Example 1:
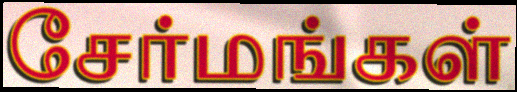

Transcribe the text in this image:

சேர்மங்கள்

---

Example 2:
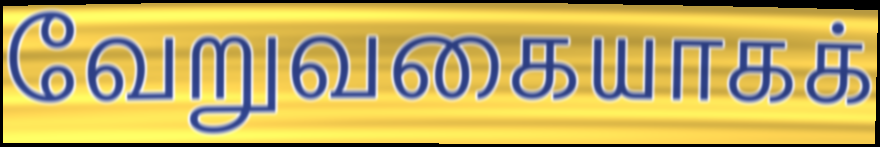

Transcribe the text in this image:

வேறுவகையாகக்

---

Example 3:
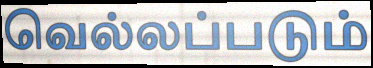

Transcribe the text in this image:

வெல்லப்படும்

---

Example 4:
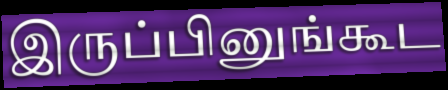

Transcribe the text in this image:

இருப்பினுங்கூட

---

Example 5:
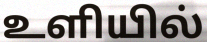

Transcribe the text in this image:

உளியில்